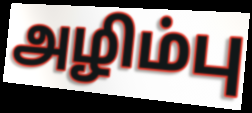
அழிம்பு